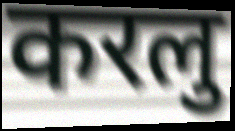
करलु